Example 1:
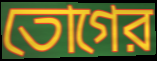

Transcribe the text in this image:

তোগের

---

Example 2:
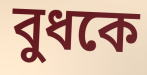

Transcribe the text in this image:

বুধকে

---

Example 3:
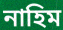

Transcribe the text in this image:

নাহিম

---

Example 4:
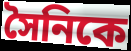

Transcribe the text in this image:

সৈনিকে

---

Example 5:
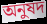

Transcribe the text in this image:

অনুষদ